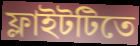
ফ্লাইটটিতে